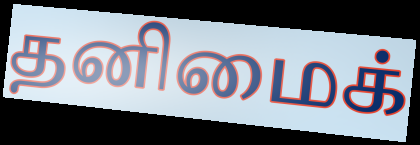
தனிமைக்